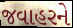
જવાહરને